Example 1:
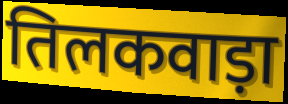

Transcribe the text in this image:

तिलकवाड़ा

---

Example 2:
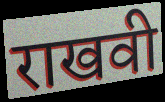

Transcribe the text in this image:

राखवी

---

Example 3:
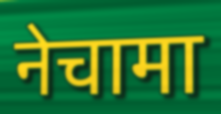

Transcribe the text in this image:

नेचामा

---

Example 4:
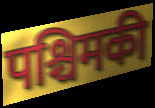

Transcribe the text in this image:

पश्चिमकी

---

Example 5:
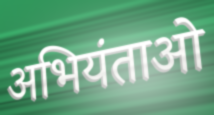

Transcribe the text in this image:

अभियंताओ